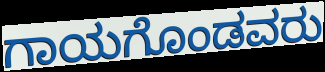
ಗಾಯಗೊಂಡವರು